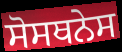
ਸੋਸਥਨੇਸ